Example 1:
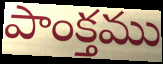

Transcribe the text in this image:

పాంక్తము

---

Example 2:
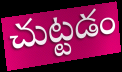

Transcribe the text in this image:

చుట్టడం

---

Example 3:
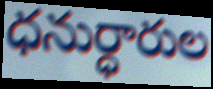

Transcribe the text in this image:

ధనుర్ధారుల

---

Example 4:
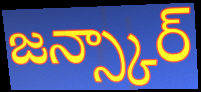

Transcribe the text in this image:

జన్స్కార్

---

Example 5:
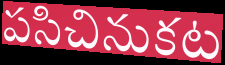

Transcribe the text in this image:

పసిచినుకట